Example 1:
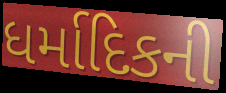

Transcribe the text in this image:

ધર્માદિકની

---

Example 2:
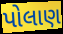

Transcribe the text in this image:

પોલાણ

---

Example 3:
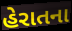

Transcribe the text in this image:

હેરાતના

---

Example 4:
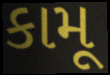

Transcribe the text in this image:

કામૂ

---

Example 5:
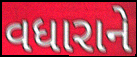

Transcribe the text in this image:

વધારાને